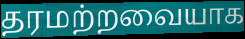
தரமற்றவையாக